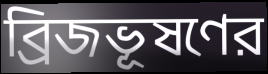
ব্রিজভূষণের